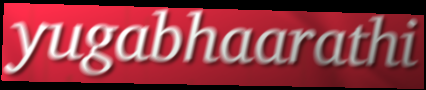
yugabhaarathi